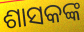
ଶାସକଙ୍କ